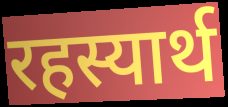
रहस्यार्थ